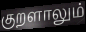
குறளாலும்